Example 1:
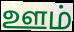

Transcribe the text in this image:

ஊம்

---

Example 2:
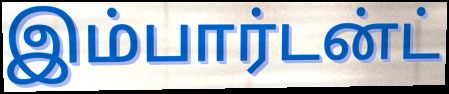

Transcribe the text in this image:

இம்பார்டன்ட்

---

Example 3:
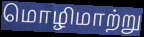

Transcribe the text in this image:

மொழிமாற்று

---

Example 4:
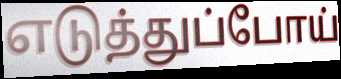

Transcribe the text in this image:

எடுத்துப்போய்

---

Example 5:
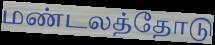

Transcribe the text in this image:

மண்டலத்தோடு